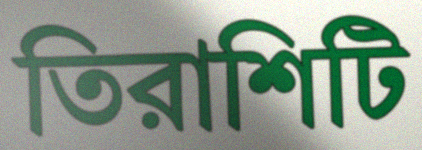
তিরাশিটি